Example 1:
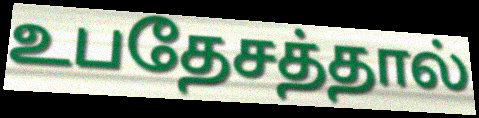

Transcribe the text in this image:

உபதேசத்தால்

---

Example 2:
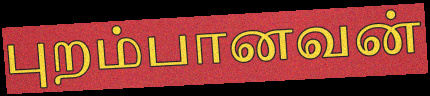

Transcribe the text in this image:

புறம்பானவன்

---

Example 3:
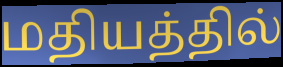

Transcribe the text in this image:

மதியத்தில்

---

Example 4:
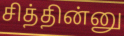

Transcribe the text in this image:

சித்தின்னு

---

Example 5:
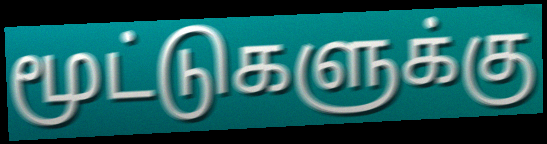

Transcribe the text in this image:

மூட்டுகளுக்கு